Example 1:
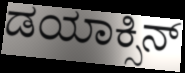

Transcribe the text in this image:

ಡಯಾಕ್ಸಿನ್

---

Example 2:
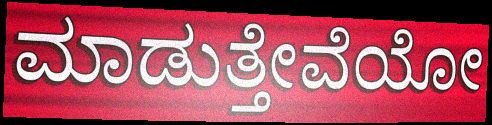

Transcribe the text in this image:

ಮಾಡುತ್ತೇವೆಯೋ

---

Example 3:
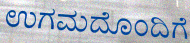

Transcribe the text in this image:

ಉಗಮದೊಂದಿಗೆ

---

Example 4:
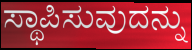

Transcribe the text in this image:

ಸ್ಥಾಪಿಸುವುದನ್ನು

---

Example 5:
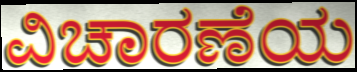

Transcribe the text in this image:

ವಿಚಾರಣೆಯ